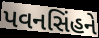
પવનસિંહને